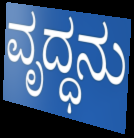
ವೃದ್ಧನು